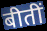
बीतीं